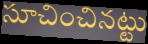
సూచించినట్టు